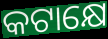
କଟାକ୍ଷେ